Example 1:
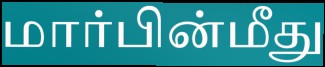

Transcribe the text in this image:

மார்பின்மீது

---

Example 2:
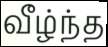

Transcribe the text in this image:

வீழ்ந்த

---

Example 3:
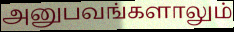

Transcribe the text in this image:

அனுபவங்களாலும்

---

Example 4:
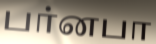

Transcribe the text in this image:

பர்னபா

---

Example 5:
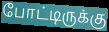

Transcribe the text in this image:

போட்டிருக்கு